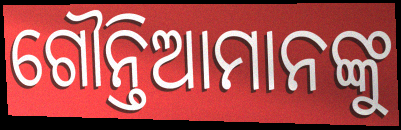
ଗୌନ୍ତିଆମାନଙ୍କୁ